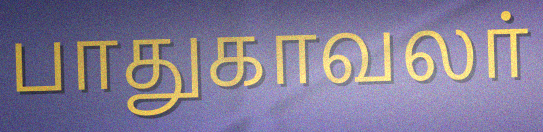
பாதுகாவலர்